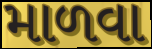
માળવા